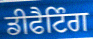
ਡੀਫੈਟਿੰਗ